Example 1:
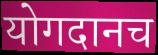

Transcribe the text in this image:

योगदानच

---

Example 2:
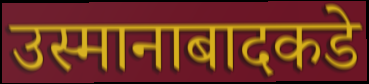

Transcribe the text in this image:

उस्मानाबादकडे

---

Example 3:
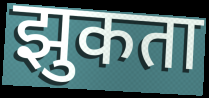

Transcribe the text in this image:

झुकता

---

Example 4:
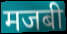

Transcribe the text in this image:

मजबी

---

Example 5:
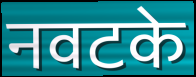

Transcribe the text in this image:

नवटके